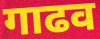
गाढव